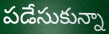
పడేసుకున్నా